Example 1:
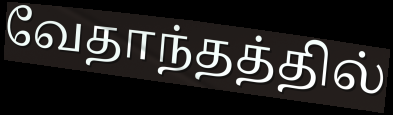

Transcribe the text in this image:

வேதாந்தத்தில்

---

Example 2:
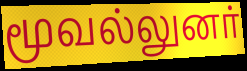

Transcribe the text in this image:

மூவல்லுனர்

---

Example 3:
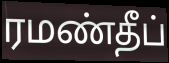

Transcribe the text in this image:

ரமண்தீப்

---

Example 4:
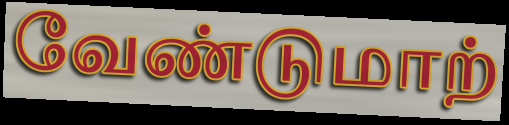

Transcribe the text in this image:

வேண்டுமாற்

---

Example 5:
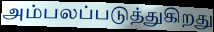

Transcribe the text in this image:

அம்பலப்படுத்துகிறது